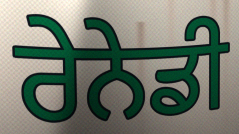
ਰੇਨੇਡੀ